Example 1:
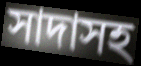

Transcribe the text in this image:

সাদাসহ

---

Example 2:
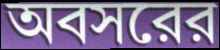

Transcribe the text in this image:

অবসরের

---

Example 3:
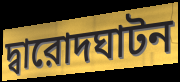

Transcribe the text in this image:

দ্বারোদঘাটন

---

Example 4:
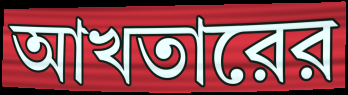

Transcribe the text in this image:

আখতারের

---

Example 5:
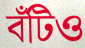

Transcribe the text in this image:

বঁটিও